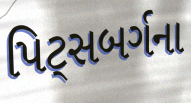
પિટ્સબર્ગના